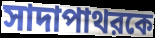
সাদাপাথরকে